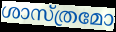
ശാസ്ത്രമോ